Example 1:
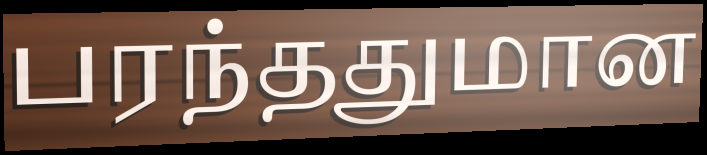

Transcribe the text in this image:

பரந்ததுமான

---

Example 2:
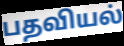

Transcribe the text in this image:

பதவியல்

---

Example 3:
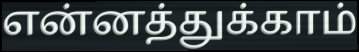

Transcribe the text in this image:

என்னத்துக்காம்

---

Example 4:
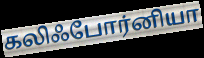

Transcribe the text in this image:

கலிஃபோர்னியா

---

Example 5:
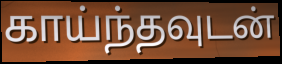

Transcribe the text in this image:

காய்ந்தவுடன்